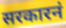
सरकारनं